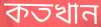
কতখান